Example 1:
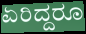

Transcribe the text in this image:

ಏರಿದ್ದರೂ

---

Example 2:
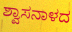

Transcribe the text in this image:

ಶ್ವಾಸನಾಳದ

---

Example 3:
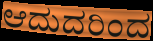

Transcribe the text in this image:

ಆದುದರಿಂದ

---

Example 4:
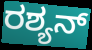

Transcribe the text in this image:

ರಶ್ಯನ್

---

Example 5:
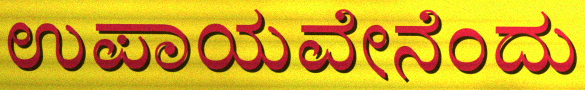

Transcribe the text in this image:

ಉಪಾಯವೇನೆಂದು